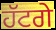
ਹੱਟਗੇ